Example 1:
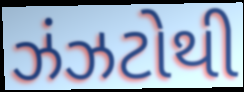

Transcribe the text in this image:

ઝંઝટોથી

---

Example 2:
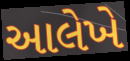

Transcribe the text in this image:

આલેખે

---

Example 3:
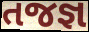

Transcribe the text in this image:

તજજ્ઞ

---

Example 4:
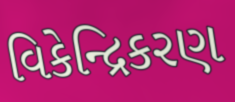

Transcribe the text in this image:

વિકેન્દ્રિકરણ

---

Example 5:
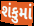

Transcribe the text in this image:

શંકુમાં